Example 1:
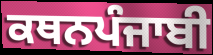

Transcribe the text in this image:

ਕਥਨਪੰਜਾਬੀ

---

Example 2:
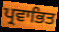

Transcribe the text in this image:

ਪ੍ਰਵਾਭਿਤ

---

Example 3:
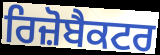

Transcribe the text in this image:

ਰਿਜ਼ੋਬੈਕਟਰ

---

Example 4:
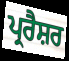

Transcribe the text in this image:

ਪ੍ਰਰੈਸ਼ਰ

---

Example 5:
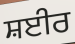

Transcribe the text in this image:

ਸ਼ਈਰ